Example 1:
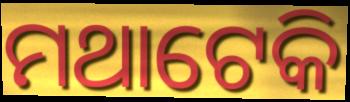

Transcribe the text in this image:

ମଥାଟେକି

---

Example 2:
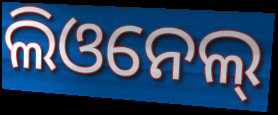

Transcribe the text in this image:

ଲିଓନେଲ୍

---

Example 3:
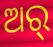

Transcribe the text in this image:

ଅର୍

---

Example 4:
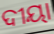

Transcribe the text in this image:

ଦୀୟା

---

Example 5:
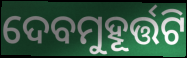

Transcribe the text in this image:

ଦେବମୁହୂର୍ତ୍ତଟି